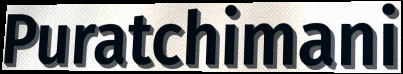
Puratchimani